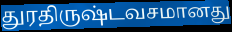
துரதிருஷ்டவசமானது